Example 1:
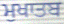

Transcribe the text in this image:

ਮੁਖਾਤਬ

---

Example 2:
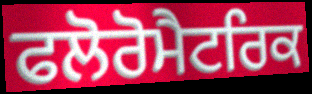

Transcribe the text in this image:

ਫਲੋਰੋਮੈਟਰਿਕ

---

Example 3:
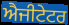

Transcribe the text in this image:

ਐਜੀਟੇਟਰ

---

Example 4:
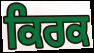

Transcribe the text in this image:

ਕਿਰਕ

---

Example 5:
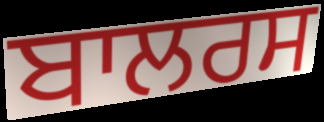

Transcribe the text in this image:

ਬਾਲਰਸ